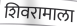
शिवरामाला